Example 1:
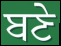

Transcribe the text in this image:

ਬਣੇ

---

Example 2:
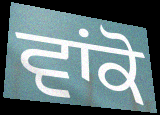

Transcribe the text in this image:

ਵਾਂਕੋ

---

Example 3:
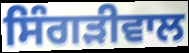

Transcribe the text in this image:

ਸਿੰਗੜੀਵਾਲ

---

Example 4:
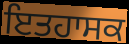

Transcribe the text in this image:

ਇਤਹਾਸਕ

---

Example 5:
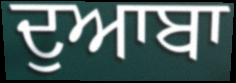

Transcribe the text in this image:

ਦੁਆਬਾ